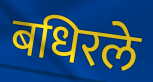
बधिरले